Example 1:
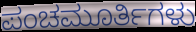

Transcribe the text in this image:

ಪಂಚಮೂರ್ತಿಗಳು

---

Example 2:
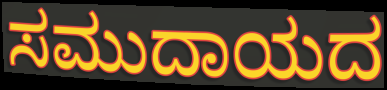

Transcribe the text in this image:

ಸಮುದಾಯದ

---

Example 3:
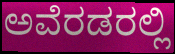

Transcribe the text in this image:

ಅವೆರಡರಲ್ಲಿ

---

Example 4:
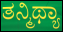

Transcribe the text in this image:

ತನ್ಮಿಥ್ಯಾ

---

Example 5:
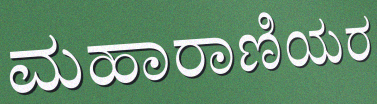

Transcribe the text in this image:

ಮಹಾರಾಣಿಯರ